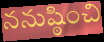
ననుష్ఠించి